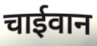
चाईवान